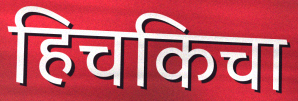
हिचकिचा